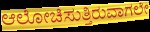
ಆಲೋಚಿಸುತ್ತಿರುವಾಗಲೇ